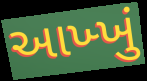
આખ્ખું